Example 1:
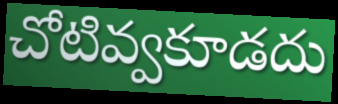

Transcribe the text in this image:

చోటివ్వకూడదు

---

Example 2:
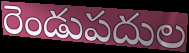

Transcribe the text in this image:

రెండుపదుల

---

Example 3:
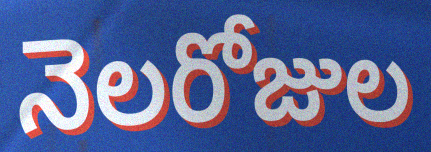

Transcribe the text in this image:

నెలరోజుల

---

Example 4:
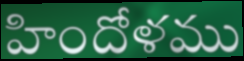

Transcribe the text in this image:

హిందోళము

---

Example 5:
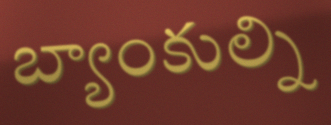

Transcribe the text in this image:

బ్యాంకుల్ని